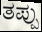
ತಪ್ಪು